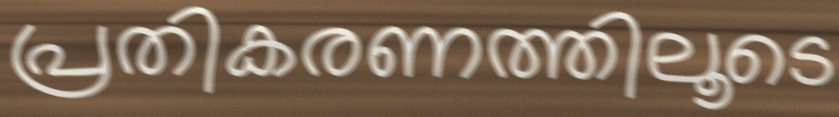
പ്രതികരണത്തിലൂടെ